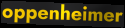
oppenheimer